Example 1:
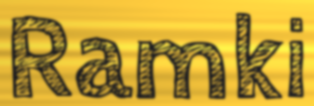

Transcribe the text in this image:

Ramki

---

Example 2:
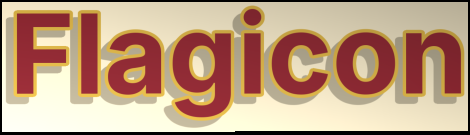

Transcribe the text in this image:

Flagicon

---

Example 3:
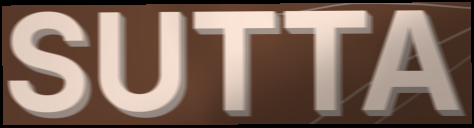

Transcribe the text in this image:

SUTTA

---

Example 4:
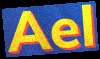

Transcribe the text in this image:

Ael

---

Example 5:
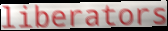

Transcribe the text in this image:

liberators